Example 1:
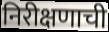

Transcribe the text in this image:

निरीक्षणाची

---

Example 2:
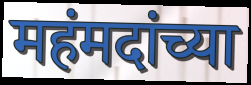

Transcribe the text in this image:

महंमदांच्या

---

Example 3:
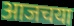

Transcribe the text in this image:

आजचया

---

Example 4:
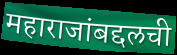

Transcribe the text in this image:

महाराजांबद्दलची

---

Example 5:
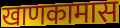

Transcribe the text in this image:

खाणकामास